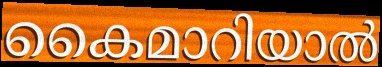
കൈമാറിയാൽ